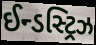
ઈન્ડસ્ટ્રિઝ